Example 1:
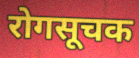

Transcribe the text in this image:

रोगसूचक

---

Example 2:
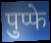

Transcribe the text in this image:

पुप्फे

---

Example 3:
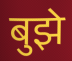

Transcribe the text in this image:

बुझे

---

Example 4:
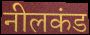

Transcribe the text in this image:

नीलकंड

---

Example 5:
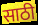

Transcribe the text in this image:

साठी